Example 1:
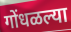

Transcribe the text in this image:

गोंधळल्या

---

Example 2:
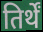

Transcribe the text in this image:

तिर्थें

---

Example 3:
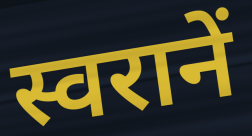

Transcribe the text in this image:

स्वरानें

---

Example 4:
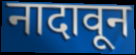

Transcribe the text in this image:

नादावून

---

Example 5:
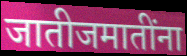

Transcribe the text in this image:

जातीजमातींना